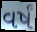
વર્ષં